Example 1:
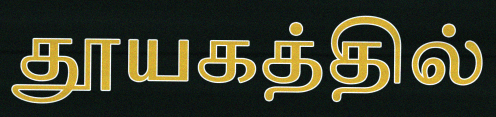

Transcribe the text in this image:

தூயகத்தில்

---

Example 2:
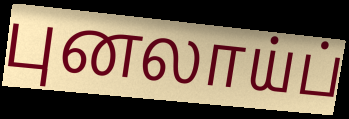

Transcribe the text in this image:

புனலாய்ப்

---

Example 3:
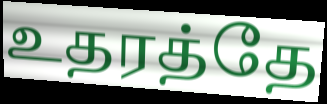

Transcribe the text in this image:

உதரத்தே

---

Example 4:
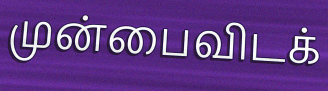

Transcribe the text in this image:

முன்பைவிடக்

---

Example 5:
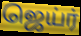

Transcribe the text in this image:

ஜெய்ர்